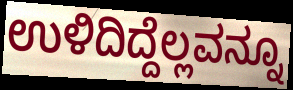
ಉಳಿದಿದ್ದೆಲ್ಲವನ್ನೂ